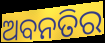
ଅବନତିର